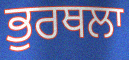
ਭੁਰਥਲਾ